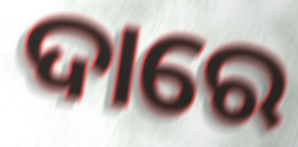
ଦାରେ